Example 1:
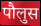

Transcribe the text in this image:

पौलुस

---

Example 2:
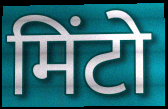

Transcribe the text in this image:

मिंटो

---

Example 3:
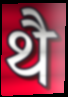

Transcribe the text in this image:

थै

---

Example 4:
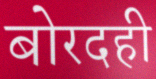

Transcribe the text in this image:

बोरदही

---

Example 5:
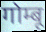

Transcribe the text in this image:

गोम्बू